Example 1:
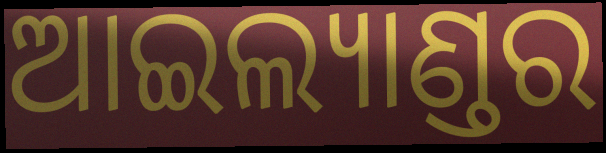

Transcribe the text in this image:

ଆଇଲ୍ୟାଣ୍ଡର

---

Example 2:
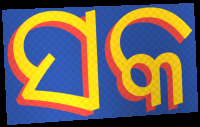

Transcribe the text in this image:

ସକ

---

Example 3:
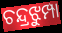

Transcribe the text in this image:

ଚନ୍ଦ୍ରଝୁମ୍ପା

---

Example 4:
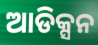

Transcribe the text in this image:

ଆଡିକ୍ସନ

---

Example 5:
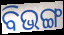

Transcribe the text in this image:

ବିଭଙ୍ଗ